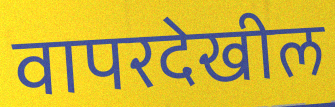
वापरदेखील